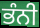
ਭੰਨੀ